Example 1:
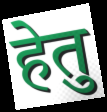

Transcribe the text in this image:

हेतु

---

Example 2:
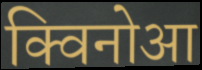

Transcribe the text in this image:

क्विनोआ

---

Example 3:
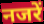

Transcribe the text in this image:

नजरें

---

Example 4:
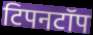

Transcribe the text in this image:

टिपनटॉप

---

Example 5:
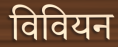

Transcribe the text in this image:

विवियन